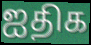
ஐதிக